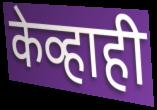
केव्हाही